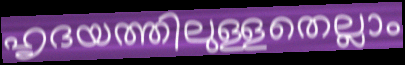
ഹൃദയത്തിലുള്ളതെല്ലാം